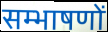
सम्भाषणों